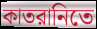
কাতরানিতে